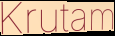
Krutam